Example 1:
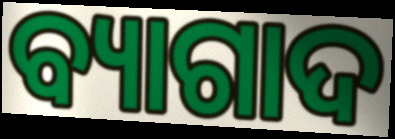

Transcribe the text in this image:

ବ୍ୟାଗାଦ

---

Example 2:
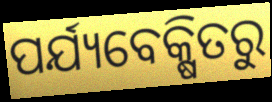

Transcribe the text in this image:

ପର୍ଯ୍ୟବେକ୍ଷିତରୁ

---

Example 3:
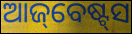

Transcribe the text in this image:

ଆଜ୍‌ବେଷ୍ଟ୍‌ସ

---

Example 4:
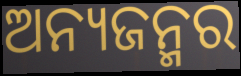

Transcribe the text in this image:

ଅନ୍ୟଜନ୍ମର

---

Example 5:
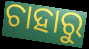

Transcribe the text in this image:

ଚାହାରୁ